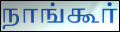
நாங்கூர்